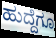
ಹುದ್ದೆಗೂ